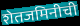
शेतजमिनीची